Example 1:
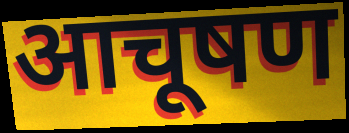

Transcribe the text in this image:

आचूषण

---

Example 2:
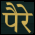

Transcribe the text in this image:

पैरे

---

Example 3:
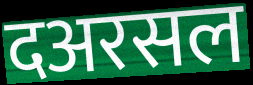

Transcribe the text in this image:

दअरसल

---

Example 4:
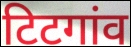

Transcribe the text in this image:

टिटगांव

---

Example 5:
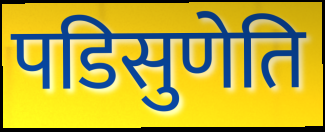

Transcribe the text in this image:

पडिसुणेति